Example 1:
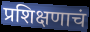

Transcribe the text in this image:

प्रशिक्षणाचं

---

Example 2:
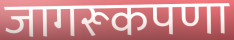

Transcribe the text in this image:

जागरूकपणा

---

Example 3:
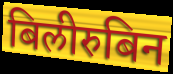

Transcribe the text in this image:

बिलीरुबिन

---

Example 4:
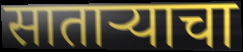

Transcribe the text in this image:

साताऱ्याचा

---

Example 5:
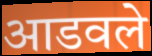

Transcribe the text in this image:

आडवले